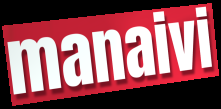
manaivi